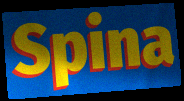
Spina